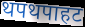
थपथपाहट